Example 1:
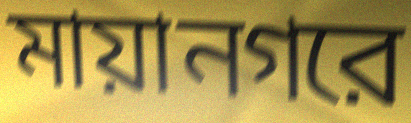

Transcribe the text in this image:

মায়ানগরে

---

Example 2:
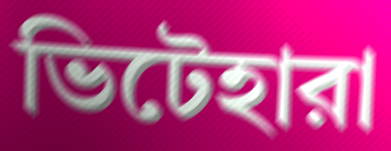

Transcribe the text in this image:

ভিটেহারা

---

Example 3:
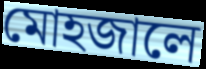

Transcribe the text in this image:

মোহজালে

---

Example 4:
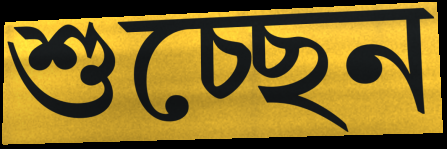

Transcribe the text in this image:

শুচ্ছেন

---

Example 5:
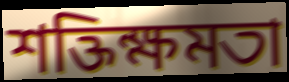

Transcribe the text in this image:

শক্তিক্ষমতা